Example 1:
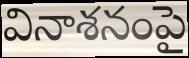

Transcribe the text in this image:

వినాశనంపై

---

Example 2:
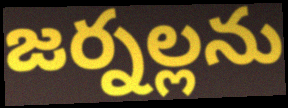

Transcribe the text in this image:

జర్నల్లను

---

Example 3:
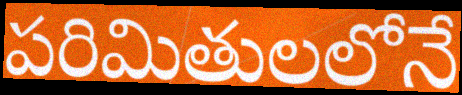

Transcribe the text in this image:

పరిమితులలోనే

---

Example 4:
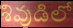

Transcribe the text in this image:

శివుడిలో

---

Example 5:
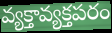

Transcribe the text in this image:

వ్యక్తావ్యక్తపరం